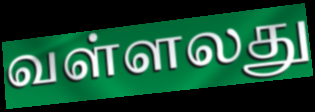
வள்ளலது